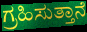
ಗ್ರಹಿಸುತ್ತಾನೆ